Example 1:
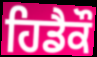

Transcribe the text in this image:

ਹਿਡੈਕੌ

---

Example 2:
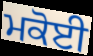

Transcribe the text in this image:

ਮਕੋਈ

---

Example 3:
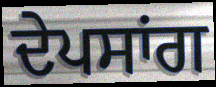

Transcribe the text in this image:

ਦੇਪਸਾਂਗ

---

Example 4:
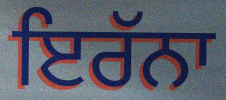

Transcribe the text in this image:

ਇਰੱਨਾ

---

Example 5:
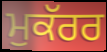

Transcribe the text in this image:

ਮੁਕੱਰਰ